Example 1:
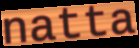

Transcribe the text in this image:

natta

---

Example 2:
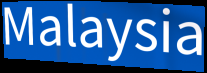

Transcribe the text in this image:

Malaysia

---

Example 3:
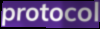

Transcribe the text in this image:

protocol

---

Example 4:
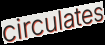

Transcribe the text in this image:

circulates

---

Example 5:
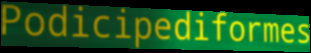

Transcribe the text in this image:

Podicipediformes